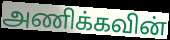
அணிக்கவின்